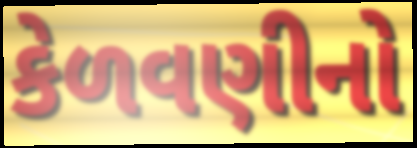
કેળવણીનો